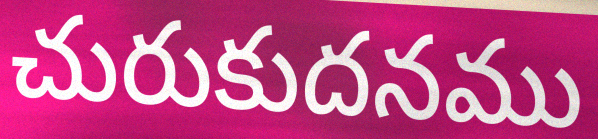
చురుకుదనము